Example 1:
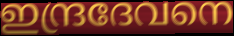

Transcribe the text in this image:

ഇന്ദ്രദേവനെ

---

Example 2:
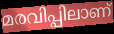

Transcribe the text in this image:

മരവിപ്പിലാണ്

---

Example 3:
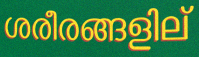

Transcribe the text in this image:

ശരീരങ്ങളില്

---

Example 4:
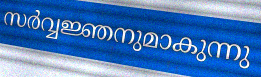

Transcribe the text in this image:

സർവ്വജ്ഞനുമാകുന്നു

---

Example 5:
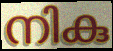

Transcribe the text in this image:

നികു